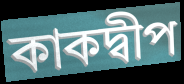
কাকদ্বীপ